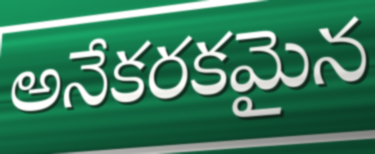
అనేకరకమైన